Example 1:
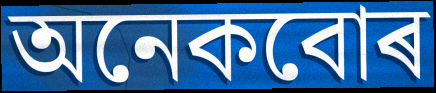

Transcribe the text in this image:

অনেকবোৰ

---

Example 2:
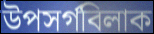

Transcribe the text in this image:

উপসৰ্গবিলাক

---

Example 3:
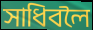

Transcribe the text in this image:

সাধিবলৈ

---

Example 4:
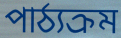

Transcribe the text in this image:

পাঠ্যক্ৰম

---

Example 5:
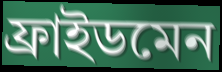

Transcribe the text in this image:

ফ্ৰাইডমেন